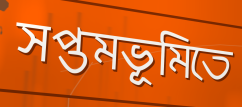
সপ্তমভূমিতে